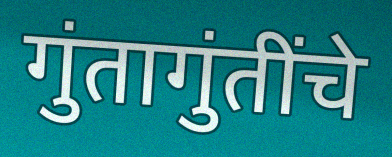
गुंतागुंतींचे